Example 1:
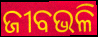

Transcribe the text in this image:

ଜୀବଭଳି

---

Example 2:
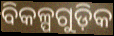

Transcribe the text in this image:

ବିକଳ୍ପଗୁଡ଼ିକ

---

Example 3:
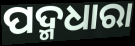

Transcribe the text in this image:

ପଦ୍ମଧାରା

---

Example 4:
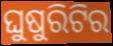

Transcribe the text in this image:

ଘୁଷୁରିଟିର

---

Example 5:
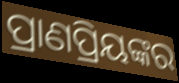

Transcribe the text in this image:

ପ୍ରାଣପ୍ରିୟଙ୍କର